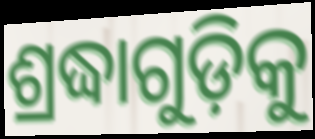
ଶ୍ରଦ୍ଧାଗୁଡ଼ିକୁ